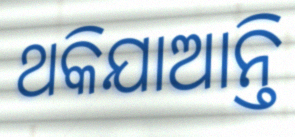
ଥକିଯାଆନ୍ତି